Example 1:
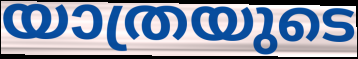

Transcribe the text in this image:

യാത്രയുടെ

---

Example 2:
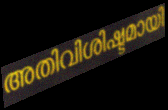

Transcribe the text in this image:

അതിവിശിഷ്ടമായി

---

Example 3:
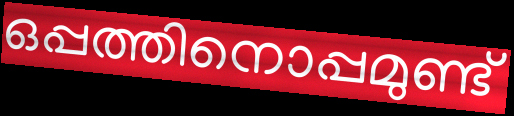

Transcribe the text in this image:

ഒപ്പത്തിനൊപ്പമുണ്ട്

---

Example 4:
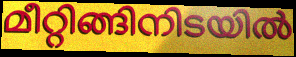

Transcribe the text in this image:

മീറ്റിങ്ങിനിടയിൽ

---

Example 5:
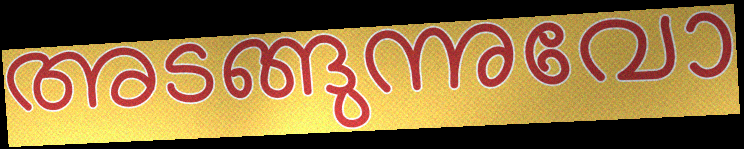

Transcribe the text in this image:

അടങ്ങുന്നുവോ